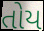
તોય